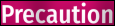
Precaution